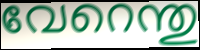
വേറെന്തു